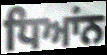
ਧਿਆਂਨ